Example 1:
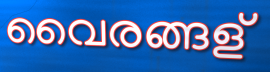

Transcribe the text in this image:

വൈരങ്ങള്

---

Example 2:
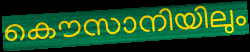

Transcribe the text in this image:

കൌസാനിയിലും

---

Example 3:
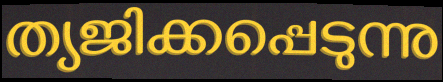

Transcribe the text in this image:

ത്യജിക്കപ്പെടുന്നു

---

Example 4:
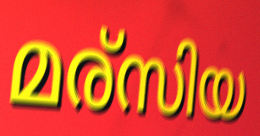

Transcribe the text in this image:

മര്സിയ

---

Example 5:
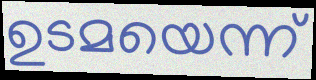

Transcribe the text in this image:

ഉടമയെന്ന്